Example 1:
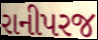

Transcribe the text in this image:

રાનીપરજ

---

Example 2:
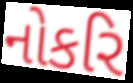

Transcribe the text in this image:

નોકરિ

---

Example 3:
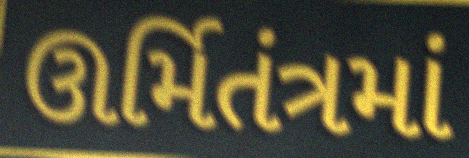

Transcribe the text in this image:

ઊર્મિતંત્રમાં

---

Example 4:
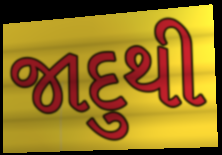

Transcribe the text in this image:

જાદુથી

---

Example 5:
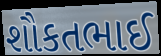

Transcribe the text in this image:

શૌકતભાઈ